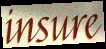
insure